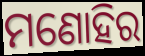
ମଣୋହିର